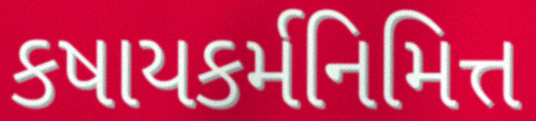
કષાયકર્મનિમિત્ત